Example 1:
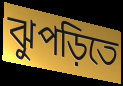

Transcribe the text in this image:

ঝুপড়িতে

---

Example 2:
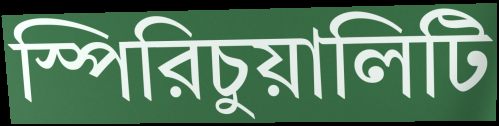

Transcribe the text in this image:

স্পিরিচুয়ালিটি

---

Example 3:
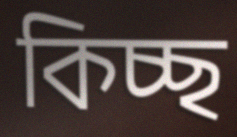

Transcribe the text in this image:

কিচ্ছ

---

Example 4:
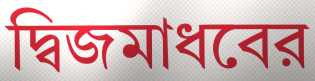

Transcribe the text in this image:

দ্বিজমাধবের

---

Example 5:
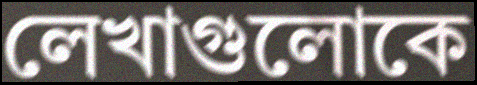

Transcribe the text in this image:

লেখাগুলোকে